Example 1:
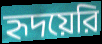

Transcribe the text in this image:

হৃদয়েরি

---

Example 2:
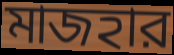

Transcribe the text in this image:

মাজহার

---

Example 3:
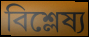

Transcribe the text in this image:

বিশ্লেষ্য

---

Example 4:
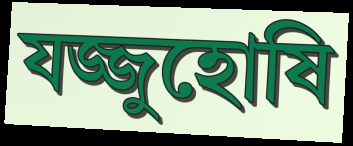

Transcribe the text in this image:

যজ্জুহোষি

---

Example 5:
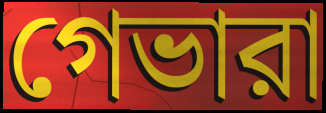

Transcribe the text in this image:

গেভারা